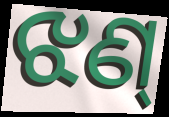
ଝଣ୍